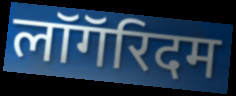
लॉगॅरिदम